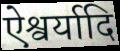
ऐश्वर्यादि